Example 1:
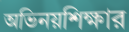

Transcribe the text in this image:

অভিনয়শিক্ষার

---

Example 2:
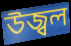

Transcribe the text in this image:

উজ্বল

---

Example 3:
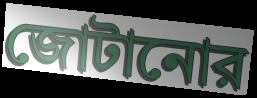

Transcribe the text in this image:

জোটানোর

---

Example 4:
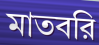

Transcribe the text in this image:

মাতবরি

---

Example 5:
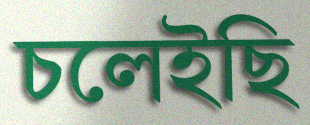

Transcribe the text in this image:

চলেইছি